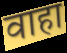
वाहा